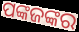
ପଙ୍କଜଙ୍କର